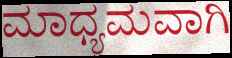
ಮಾಧ್ಯಮವಾಗಿ